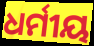
ଧର୍ମୀୟ